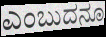
ಎಂಬುದನೂ